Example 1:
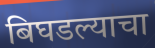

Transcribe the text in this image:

बिघडल्याचा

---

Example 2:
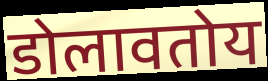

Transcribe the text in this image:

डोलावतोय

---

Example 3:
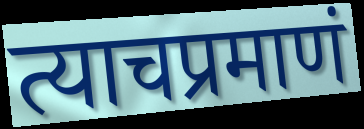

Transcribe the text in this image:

त्याचप्रमाणं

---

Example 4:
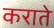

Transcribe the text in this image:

कराते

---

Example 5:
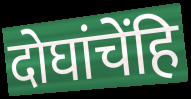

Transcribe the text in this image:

दोघांचेंहि